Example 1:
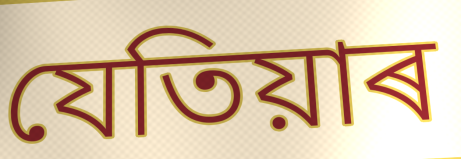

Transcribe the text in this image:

যেতিয়াৰ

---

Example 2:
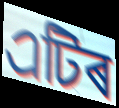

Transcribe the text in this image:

এটিৰ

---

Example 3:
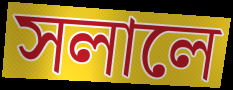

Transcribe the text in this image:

সলালে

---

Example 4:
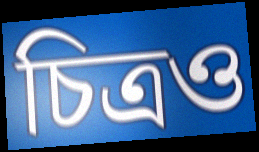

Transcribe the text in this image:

চিত্ৰও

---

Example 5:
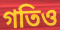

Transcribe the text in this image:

গতিও